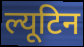
ल्यूटिन